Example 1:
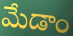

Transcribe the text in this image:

మేడాం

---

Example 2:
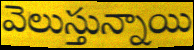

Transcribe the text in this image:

వెలుస్తున్నాయి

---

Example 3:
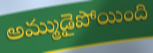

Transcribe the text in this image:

అమ్ముడైపోయింది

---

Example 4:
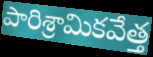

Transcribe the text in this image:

పారిశ్రామికవేత్త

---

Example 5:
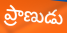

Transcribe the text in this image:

ప్రాణుడు